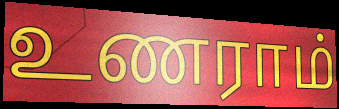
உணராம்